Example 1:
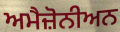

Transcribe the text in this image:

ਅਮੈਜ਼ੋਨੀਅਨ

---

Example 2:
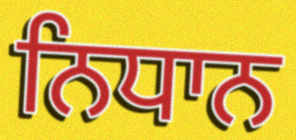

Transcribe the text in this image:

ਨਿਧਾਨ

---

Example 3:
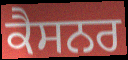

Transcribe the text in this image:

ਕੈਸਨਰ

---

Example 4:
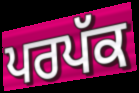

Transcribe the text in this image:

ਪਰਪੱਕ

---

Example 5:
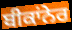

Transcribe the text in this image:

ਬੀਕਾਂਨੇਰ